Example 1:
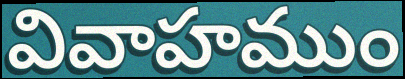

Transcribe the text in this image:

వివాహముం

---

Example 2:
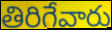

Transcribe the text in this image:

తిరిగేవారు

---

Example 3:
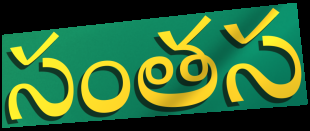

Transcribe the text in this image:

సంతస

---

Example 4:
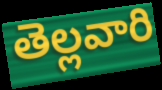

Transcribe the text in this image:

తెల్లవారి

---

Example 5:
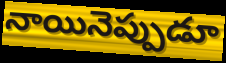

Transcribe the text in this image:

నాయినెప్పుడూ